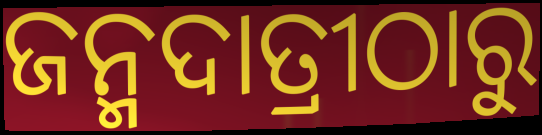
ଜନ୍ମଦାତ୍ରୀଠାରୁ